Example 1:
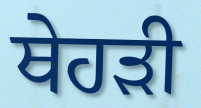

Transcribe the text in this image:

ਥੇਹੜੀ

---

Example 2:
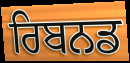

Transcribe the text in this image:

ਰਿਬਨਡ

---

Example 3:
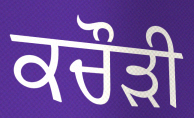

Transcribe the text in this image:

ਕਚੌੜੀ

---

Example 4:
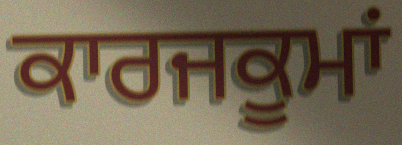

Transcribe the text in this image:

ਕਾਰਜਕੂਮਾਂ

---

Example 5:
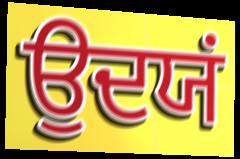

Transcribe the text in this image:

ਉਦਯਂ